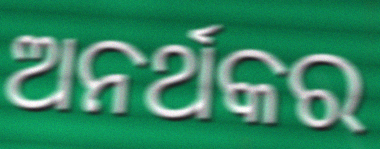
ଅନର୍ଥକର